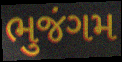
ભુજંગમ